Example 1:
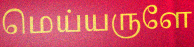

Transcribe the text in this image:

மெய்யருளே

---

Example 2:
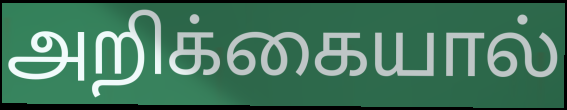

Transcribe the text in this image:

அறிக்கையால்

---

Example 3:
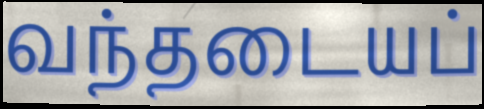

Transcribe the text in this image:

வந்தடையப்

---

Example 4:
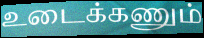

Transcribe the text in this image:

உடைக்கணும்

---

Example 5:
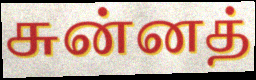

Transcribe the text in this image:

சுன்னத்